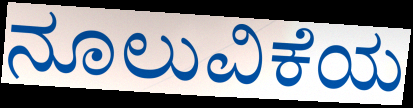
ನೂಲುವಿಕೆಯ